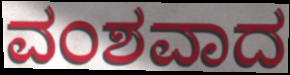
ವಂಶವಾದ